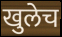
खुलेच